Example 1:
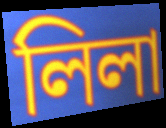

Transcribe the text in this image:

লিলা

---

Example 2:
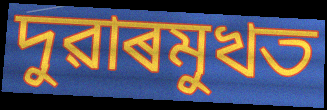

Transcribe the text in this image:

দুৱাৰমুখত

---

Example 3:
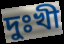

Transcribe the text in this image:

দুঃখী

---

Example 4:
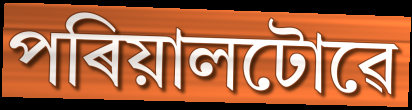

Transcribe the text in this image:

পৰিয়ালটোৱে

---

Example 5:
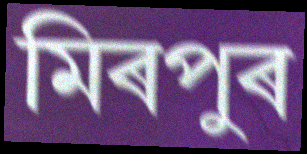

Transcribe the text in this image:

মিৰপুৰ